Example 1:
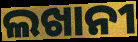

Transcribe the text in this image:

ଲଖାନୀ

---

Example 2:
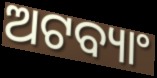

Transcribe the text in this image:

ଅଟବ୍ୟାଂ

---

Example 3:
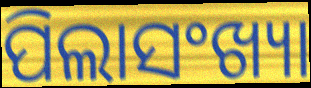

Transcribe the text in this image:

ପିଲାସଂଖ୍ୟା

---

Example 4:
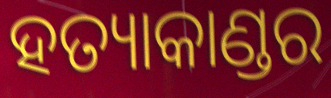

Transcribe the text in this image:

ହତ୍ୟାକାଣ୍ଡର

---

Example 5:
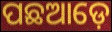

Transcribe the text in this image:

ପଛଆଡ଼େ